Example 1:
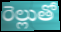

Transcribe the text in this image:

రెల్లుతో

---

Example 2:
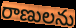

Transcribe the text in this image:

రాణులను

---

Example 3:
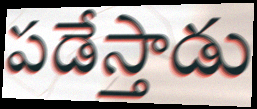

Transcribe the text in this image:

పడేస్తాడు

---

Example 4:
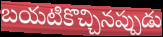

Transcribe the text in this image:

బయటికొచ్చినప్పుడు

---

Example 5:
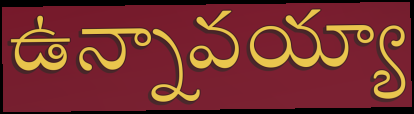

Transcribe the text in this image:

ఉన్నావయ్యా